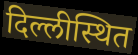
दिल्लीस्थित